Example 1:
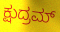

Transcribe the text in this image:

ಕ್ಷುದ್ರಮ್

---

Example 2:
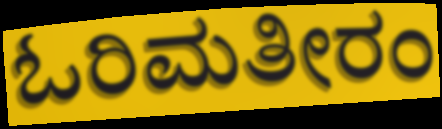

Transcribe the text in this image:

ಓರಿಮತೀರಂ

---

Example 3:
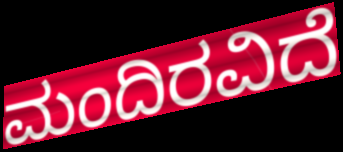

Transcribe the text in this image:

ಮಂದಿರವಿದೆ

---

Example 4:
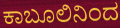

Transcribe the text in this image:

ಕಾಬೂಲಿನಿಂದ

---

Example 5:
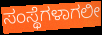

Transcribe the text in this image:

ಸಂಸ್ಥೆಗಳಾಗಲೀ